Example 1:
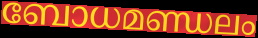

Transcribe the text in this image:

ബോധമണ്ഡലം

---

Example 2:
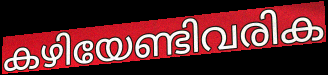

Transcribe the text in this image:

കഴിയേണ്ടിവരിക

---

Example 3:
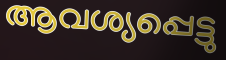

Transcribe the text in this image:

ആവശ്യപ്പെട്ടു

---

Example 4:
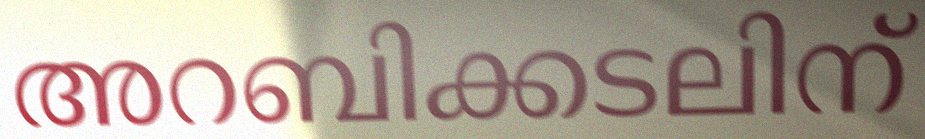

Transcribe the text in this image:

അറബിക്കടലിന്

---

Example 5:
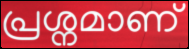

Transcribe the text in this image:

പ്രശ്നമാണ്